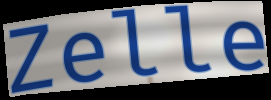
Zelle